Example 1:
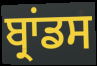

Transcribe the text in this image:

ਬ੍ਰਾਂਡਸ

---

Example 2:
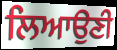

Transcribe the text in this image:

ਲਿਆਉਣੀ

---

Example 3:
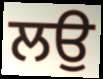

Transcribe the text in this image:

ਲਉ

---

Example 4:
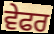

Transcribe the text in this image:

ਵੇਫਰ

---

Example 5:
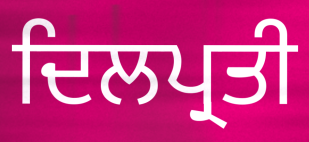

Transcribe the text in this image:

ਦਿਲਪ੍ਰਤੀ